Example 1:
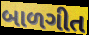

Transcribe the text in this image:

બાળગીત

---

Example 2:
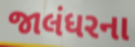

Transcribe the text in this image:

જાલંધરના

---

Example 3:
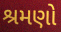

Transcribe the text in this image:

શ્રમણો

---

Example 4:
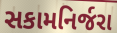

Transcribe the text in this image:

સકામનિર્જરા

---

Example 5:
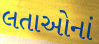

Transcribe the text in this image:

લતાઓનાં